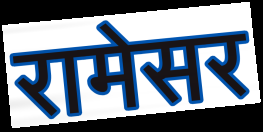
रामेसर